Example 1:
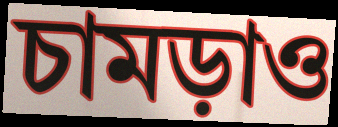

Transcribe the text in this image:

চামড়াও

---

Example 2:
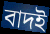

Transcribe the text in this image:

বাদই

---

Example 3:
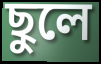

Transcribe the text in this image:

ছুলে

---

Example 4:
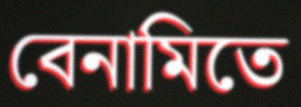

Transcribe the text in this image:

বেনামিতে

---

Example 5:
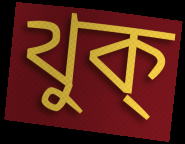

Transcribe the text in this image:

থুক্